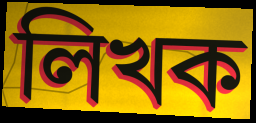
লিখক